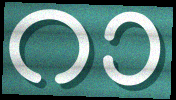
റാ